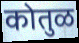
कोतुळ